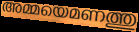
അമ്മയെമണത്തു